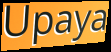
Upaya